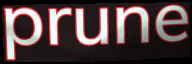
prune